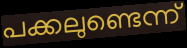
പക്കലുണ്ടെന്ന്